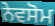
ਨੇਵਸੋਮ